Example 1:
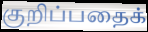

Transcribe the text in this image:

குறிப்பதைக்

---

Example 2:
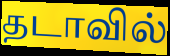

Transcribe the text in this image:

தடாவில்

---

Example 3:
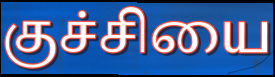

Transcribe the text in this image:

குச்சியை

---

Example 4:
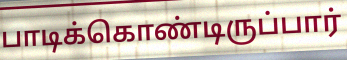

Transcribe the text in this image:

பாடிக்கொண்டிருப்பார்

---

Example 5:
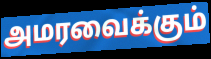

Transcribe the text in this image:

அமரவைக்கும்